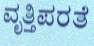
ವೃತ್ತಿಪರತೆ